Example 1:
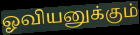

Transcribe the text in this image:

ஓவியனுக்கும்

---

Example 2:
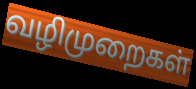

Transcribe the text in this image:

வழிமுறைகள்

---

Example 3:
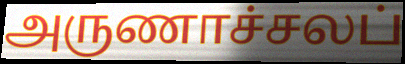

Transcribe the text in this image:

அருணாச்சலப்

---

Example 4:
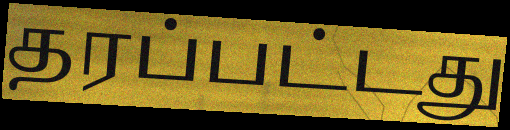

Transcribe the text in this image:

தரப்பட்டது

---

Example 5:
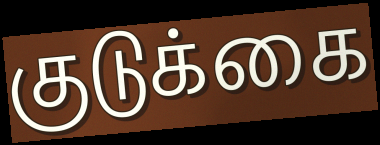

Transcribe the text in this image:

குடுக்கை